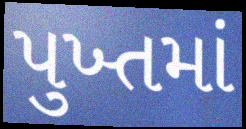
પુખ્તમાં